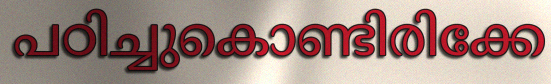
പഠിച്ചുകൊണ്ടിരിക്കേ